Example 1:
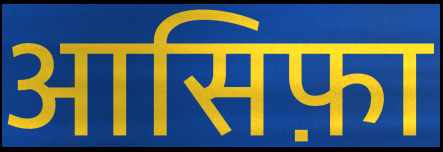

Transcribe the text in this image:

आसिफ़ा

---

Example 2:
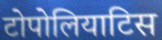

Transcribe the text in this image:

टोपोलियाटिस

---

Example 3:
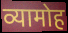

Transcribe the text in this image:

व्यामोह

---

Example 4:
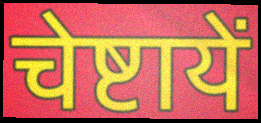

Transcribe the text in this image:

चेष्टायें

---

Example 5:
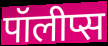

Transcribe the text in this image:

पॉलीप्स